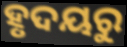
ହୃଦୟରୁ